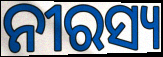
ନୀରସ୍ୟ